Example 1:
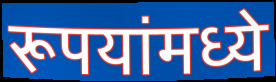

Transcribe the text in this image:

रूपयांमध्ये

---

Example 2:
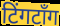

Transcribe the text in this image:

टिंगटॉंग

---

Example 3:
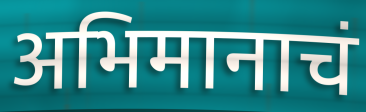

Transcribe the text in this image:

अभिमानाचं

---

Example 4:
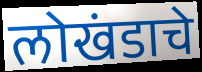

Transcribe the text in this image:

लोखंडाचे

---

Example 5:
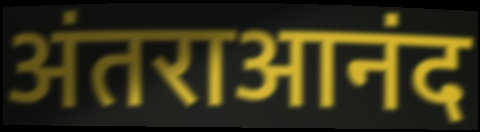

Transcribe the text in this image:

अंतराआनंद